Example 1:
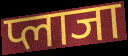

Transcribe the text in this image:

प्‍लाजा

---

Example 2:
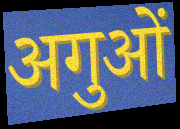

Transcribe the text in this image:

अगुओं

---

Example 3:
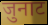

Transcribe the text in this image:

जुनाट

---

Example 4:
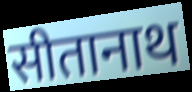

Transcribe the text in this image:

सीतानाथ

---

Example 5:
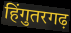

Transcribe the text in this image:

हिंगुतरगढ़